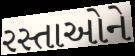
રસ્તાઓને